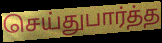
செய்துபார்த்த